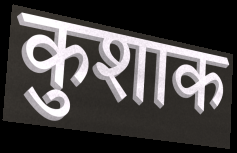
कुशाक